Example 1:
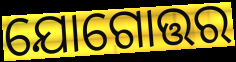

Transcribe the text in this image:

ଯୋଗୋତ୍ତର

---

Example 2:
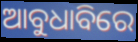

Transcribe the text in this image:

ଆବୁଧାବିରେ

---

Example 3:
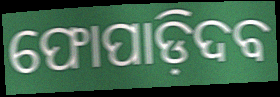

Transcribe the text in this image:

ଫୋପାଡ଼ିଦବ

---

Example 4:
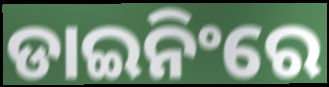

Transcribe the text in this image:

ଡାଇନିଂରେ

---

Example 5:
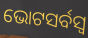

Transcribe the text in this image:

ଭୋଟସର୍ବସ୍ବ